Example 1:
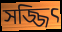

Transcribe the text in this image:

সজ্জিৎ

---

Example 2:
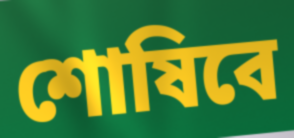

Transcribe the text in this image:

শোষিবে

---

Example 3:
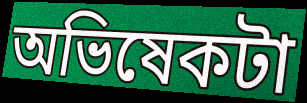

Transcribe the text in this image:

অভিষেকটা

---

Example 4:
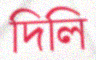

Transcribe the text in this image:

দিলি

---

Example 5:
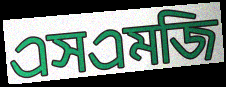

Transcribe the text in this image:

এসএমজি